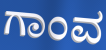
ಗಾಂವ